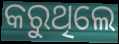
କରୁଥିଲେ